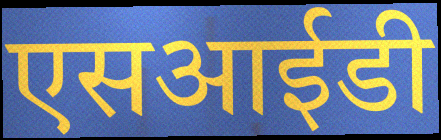
एसआईडी